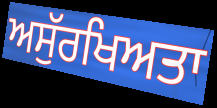
ਅਸੁੱਰਖਿਅਤਾ